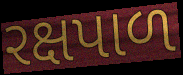
રક્ષપાળ